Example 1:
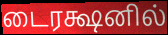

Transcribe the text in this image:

டைரக்ஷனில்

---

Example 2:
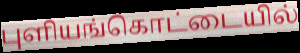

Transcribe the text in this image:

புளியங்கொட்டையில்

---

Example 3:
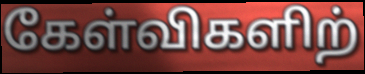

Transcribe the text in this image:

கேள்விகளிற்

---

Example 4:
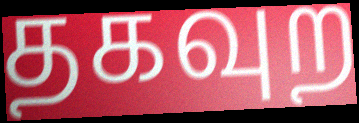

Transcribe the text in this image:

தகவுற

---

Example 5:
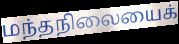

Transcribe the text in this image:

மந்தநிலையைக்